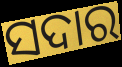
ସଦାର